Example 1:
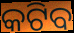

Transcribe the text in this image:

କଟିବ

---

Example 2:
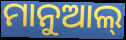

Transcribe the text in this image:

ମାନୁଆଲ୍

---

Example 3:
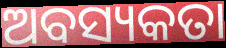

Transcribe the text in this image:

ଅବସ୍ୟକତା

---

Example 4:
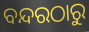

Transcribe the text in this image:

ବନ୍ଦରଠାରୁ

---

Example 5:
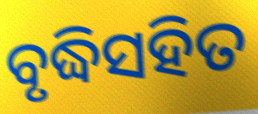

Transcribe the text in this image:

ବୃଦ୍ଧିସହିତ